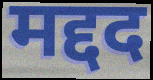
मद्दद